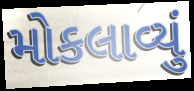
મોકલાવ્યું